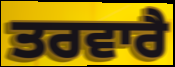
ਤਰਵਾਰੈ